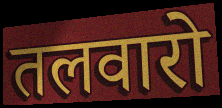
तलवारो